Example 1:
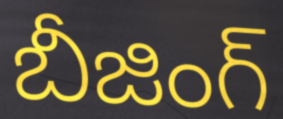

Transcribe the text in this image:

బీజింగ్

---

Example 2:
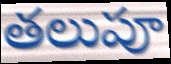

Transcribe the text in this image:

తలుపూ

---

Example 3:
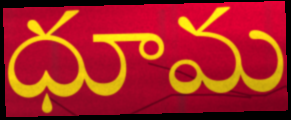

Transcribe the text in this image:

ధూమ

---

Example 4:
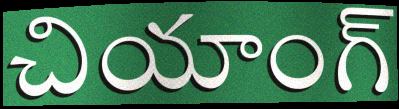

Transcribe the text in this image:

చియాంగ్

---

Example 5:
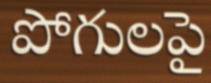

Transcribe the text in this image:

పోగులపై